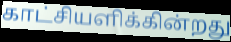
காட்சியளிக்கின்றது